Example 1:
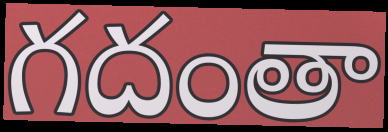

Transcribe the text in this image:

గదంతా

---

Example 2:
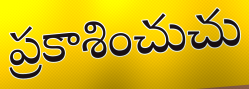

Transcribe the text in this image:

ప్రకాశించుచు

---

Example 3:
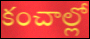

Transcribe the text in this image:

కంచాల్లో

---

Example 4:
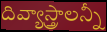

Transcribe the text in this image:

దివ్యాస్త్రాలన్నీ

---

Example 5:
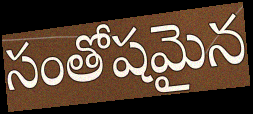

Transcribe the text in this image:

సంతోషమైన